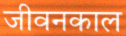
जीवनकाल